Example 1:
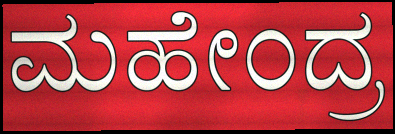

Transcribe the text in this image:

ಮಹೇಂದ್ರ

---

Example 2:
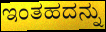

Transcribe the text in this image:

ಇಂತಹದನ್ನು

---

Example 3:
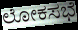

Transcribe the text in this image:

ಲೋಕಸಭೆ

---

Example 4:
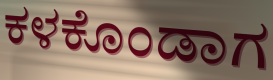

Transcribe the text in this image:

ಕಳಕೊಂಡಾಗ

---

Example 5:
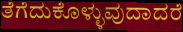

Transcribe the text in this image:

ತೆಗೆದುಕೊಳ್ಳುವುದಾದರೆ